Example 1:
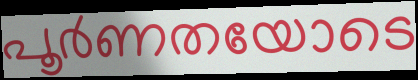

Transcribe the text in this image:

പൂർണതയോടെ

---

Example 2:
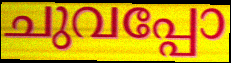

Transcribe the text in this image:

ചുവപ്പോ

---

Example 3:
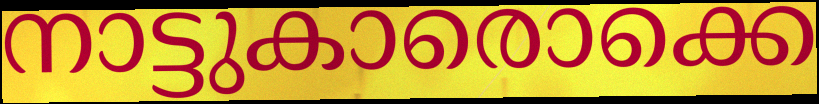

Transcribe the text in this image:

നാട്ടുകാരൊക്കെ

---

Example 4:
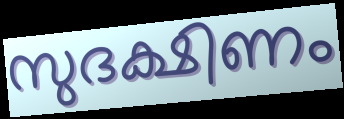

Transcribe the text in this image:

സുദക്ഷിണം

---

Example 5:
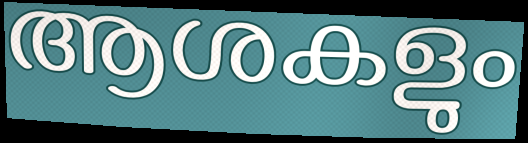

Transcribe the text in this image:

ആശകളും